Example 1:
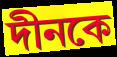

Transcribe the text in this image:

দীনকে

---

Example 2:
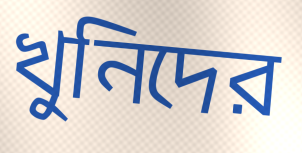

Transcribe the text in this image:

খুনিদের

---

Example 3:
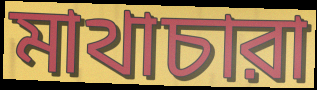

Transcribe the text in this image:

মাথাচারা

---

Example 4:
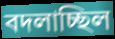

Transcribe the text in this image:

বদলাচ্ছিল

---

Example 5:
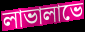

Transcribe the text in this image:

লাভালাভে